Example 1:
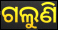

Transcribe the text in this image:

ଗଲୁଣି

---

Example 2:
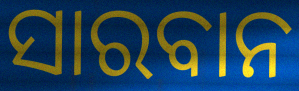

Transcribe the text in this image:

ସାରବାନ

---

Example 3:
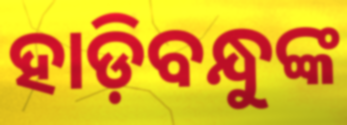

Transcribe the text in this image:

ହାଡ଼ିବନ୍ଧୁଙ୍କ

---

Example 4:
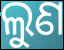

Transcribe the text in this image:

ଲୁଣ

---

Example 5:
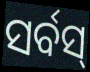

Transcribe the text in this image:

ସର୍ବସ୍